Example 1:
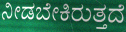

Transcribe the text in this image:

ನೀಡಬೇಕಿರುತ್ತದೆ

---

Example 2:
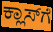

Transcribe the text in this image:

ಕ್ಲಾಸ್‌ಗೆ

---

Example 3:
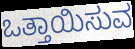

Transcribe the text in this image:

ಒತ್ತಾಯಿಸುವ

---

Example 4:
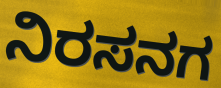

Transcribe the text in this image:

ನಿರಸನಗ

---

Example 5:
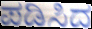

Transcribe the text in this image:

ಪಡಿಸಿದ